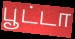
பூட்டா